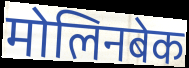
मोलिनबेक